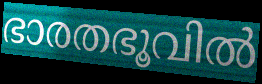
ഭാരതഭൂവിൽ